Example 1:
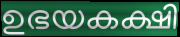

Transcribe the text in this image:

ഉഭയകക്ഷി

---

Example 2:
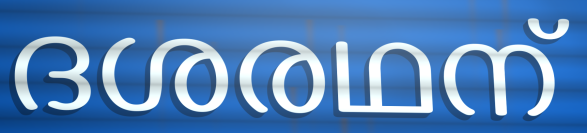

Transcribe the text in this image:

ദശരഥന്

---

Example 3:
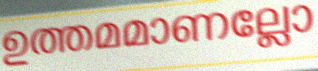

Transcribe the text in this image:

ഉത്തമമാണല്ലോ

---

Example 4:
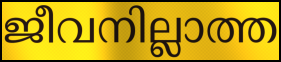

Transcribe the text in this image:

ജീവനില്ലാത്ത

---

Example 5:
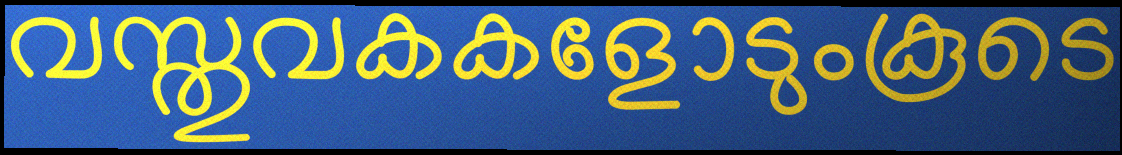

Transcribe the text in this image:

വസ്തുവകകളോടുംകൂടെ